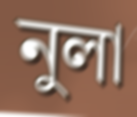
নুলা